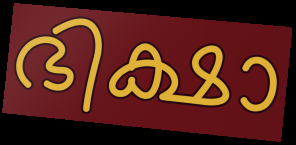
ഭിക്ഷാ